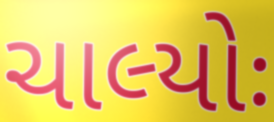
ચાલ્યોઃ